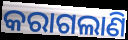
କରାଗଲାଣି